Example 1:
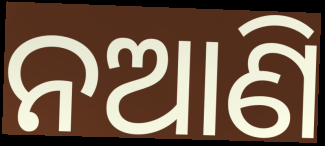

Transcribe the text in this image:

ନଆଣି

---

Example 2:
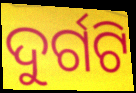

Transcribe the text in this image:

ଦୁର୍ଗଟି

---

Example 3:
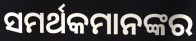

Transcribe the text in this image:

ସମର୍ଥକମାନଙ୍କର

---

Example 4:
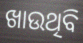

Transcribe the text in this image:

ଖାଉଥିବି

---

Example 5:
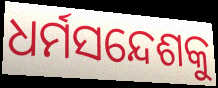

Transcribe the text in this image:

ଧର୍ମସନ୍ଦେଶକୁ